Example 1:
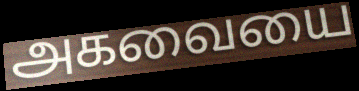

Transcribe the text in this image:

அகவையை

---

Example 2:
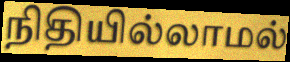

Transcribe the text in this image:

நிதியில்லாமல்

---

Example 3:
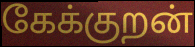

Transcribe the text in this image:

கேக்குறன்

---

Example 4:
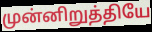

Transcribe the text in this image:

முன்னிறுத்தியே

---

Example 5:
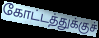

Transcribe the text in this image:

கோட்டத்துக்குச்